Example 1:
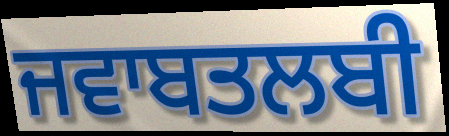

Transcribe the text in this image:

ਜਵਾਬਤਲਬੀ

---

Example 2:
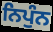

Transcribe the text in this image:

ਨਿਪੁੰਨ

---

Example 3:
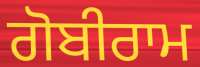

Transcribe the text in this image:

ਗੋਬੀਰਾਮ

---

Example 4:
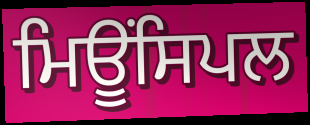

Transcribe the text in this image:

ਮਿਊਂਸਿਪਲ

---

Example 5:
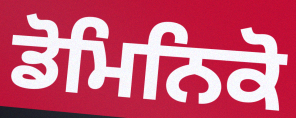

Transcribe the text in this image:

ਡੋਮਿਨਿਕੋ